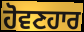
ਹੋਵਣਹਾਰ